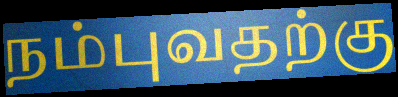
நம்புவதற்கு